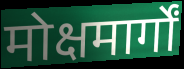
मोक्षमार्गों